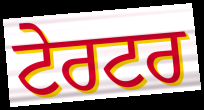
ਟੇਰਟਰ